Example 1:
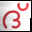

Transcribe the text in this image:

ദ്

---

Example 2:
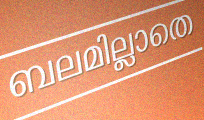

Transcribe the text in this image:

ബലമില്ലാതെ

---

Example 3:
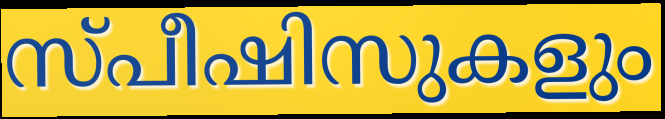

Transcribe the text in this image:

സ്പീഷിസുകളും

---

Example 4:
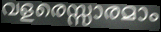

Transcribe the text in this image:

വളരെസ്സാരമാം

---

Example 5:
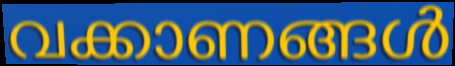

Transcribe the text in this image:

വക്കാണങ്ങൾ